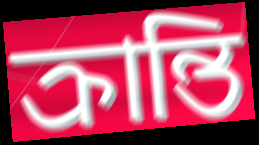
ক্ৰান্তি